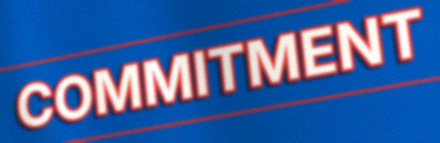
COMMITMENT